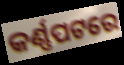
କର୍ଣ୍ଣପଟରେ